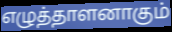
எழுத்தாளனாகும்